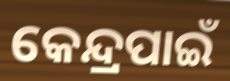
କେନ୍ଦ୍ରପାଇଁ